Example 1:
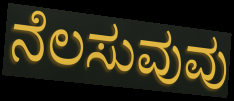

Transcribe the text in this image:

ನೆಲಸುವುವು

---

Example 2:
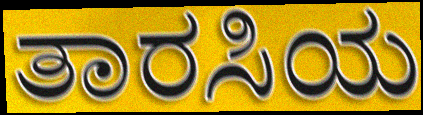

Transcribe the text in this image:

ತಾರಸಿಯ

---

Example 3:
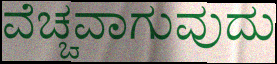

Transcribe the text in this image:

ವೆಚ್ಚವಾಗುವುದು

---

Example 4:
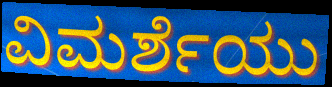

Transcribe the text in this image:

ವಿಮರ್ಶೆಯು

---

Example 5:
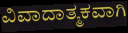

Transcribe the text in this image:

ವಿವಾದಾತ್ಮಕವಾಗಿ